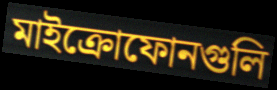
মাইক্রোফোনগুলি